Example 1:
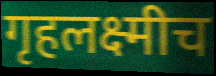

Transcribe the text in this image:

गृहलक्ष्मीच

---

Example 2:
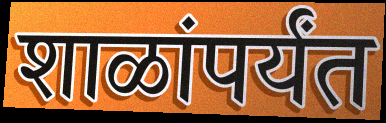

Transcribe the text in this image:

शाळांपर्यंत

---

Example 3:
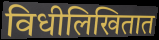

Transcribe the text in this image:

विधीलिखितात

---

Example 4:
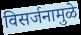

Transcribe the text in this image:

विसर्जनामुळे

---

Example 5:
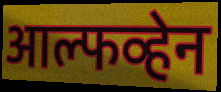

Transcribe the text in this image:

आल्फव्हेन